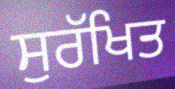
ਸੁਰੱਖਿਤ